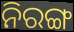
ନିରଙ୍ଗ